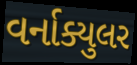
વર્નાક્યુલર